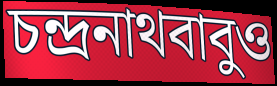
চন্দ্রনাথবাবুও